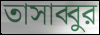
তাসাব্বুর